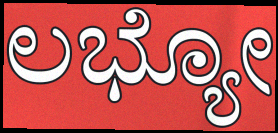
ಲಭ್ಯೋ